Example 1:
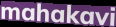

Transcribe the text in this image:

mahakavi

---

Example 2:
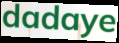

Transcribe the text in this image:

dadaye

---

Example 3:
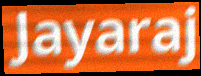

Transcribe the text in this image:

Jayaraj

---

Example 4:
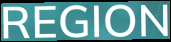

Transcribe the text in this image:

REGION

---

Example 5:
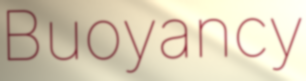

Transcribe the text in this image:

Buoyancy